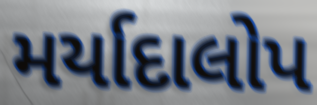
મર્યાદાલોપ